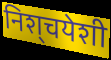
निश्चयेशी